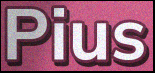
Pius